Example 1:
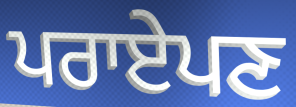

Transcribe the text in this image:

ਪਰਾਏਪਣ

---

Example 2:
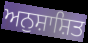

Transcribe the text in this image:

ਅਨੁਸ਼ਾਸ਼ਿਤ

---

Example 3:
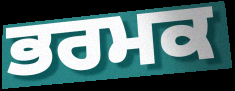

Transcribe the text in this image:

ਭਰਮਕ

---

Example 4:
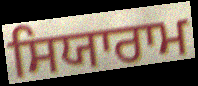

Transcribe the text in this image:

ਸਿਯਾਰਾਮ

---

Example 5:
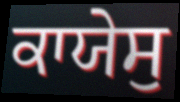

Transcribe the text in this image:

ਕਾਯੇਸੁ